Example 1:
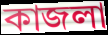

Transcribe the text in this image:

কাজলা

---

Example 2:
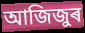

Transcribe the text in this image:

আজিজুৰ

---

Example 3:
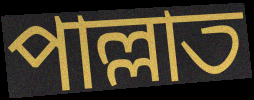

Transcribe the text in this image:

পাল্লাত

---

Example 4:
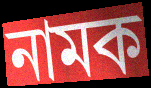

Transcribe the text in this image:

নামক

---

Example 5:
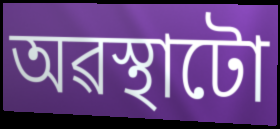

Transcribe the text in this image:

অৱস্থাটো